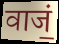
वाजं॒